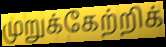
முறுக்கேற்றிக்